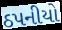
ઠપનીયો